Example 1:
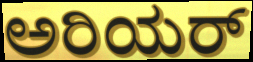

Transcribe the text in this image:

ಅರಿಯರ್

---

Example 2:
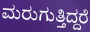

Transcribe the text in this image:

ಮರುಗುತ್ತಿದ್ದರೆ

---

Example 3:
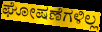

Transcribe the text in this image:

ಘೋಷಣೆಗಳಿಲ್ಲ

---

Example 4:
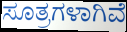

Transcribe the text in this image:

ಸೂತ್ರಗಳಾಗಿವೆ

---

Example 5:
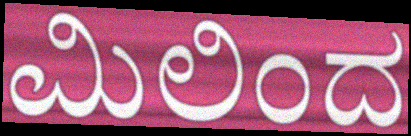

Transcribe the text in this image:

ಮಿಲಿಂದ